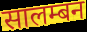
सालम्बन